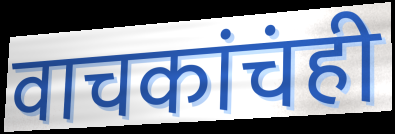
वाचकांचंही